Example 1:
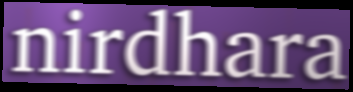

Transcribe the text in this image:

nirdhara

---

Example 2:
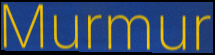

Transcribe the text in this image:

Murmur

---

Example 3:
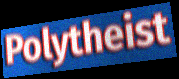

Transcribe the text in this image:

Polytheist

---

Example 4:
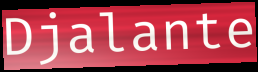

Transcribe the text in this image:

Djalante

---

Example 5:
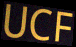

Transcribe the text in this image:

UCF